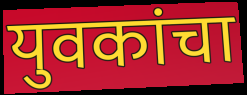
युवकांचा